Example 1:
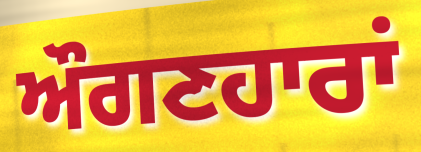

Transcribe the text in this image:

ਔਗਣਹਾਰਾਂ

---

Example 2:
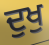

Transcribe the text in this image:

ਦੁਖੁ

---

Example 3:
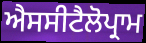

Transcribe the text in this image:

ਐਸਸੀਟੈਲੋਪ੍ਰਾਮ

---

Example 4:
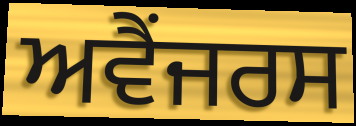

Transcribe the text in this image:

ਅਵੈਂਜਰਸ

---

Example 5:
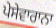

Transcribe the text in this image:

ਪੇਸੇਵਾਰਾਨਾ